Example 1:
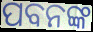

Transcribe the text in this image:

ପବନଙ୍କ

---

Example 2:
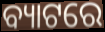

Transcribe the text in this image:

ବ୍ୟାଟରେ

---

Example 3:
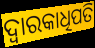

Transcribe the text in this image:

ଦ୍ୱାରକାଧିପତି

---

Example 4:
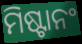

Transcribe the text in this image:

ମିଷ୍ଟାନଂ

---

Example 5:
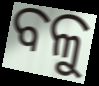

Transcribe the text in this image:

ବଳୁ